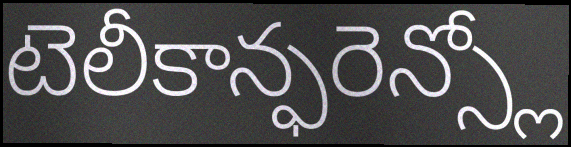
టెలీకాన్ఫరెన్స్లో